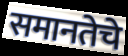
समानतेचे